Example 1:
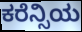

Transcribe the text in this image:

ಕರೆನ್ಸಿಯ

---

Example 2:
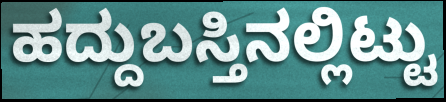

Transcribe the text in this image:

ಹದ್ದುಬಸ್ತಿನಲ್ಲಿಟ್ಟು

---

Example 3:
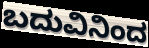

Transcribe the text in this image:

ಬದುವಿನಿಂದ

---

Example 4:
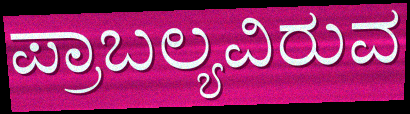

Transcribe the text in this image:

ಪ್ರಾಬಲ್ಯವಿರುವ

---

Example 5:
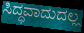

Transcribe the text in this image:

ಸಿದ್ಧವಾದುದಲ್ಲ